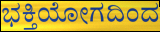
ಭಕ್ತಿಯೋಗದಿಂದ